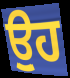
ਉੁਹ